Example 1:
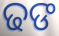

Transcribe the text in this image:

ଢଙ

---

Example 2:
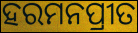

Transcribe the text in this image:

ହରମନପ୍ରୀତ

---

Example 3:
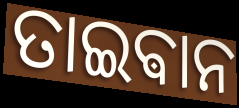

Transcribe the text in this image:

ତାଇଵାନ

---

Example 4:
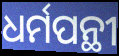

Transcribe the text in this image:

ଧର୍ମପନ୍ଥୀ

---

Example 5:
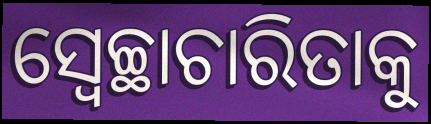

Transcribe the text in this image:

ସ୍ଵେଚ୍ଛାଚାରିତାକୁ